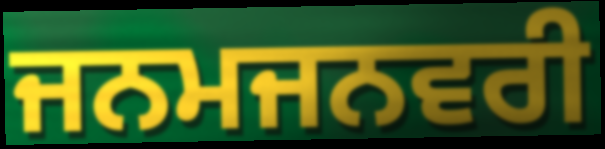
ਜਨਮਜਨਵਰੀ